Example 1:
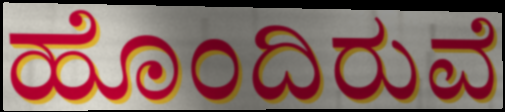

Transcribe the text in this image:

ಹೊಂದಿರುವೆ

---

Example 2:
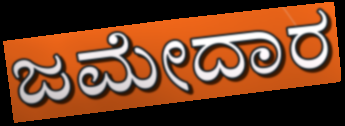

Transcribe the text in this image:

ಜಮೇದಾರ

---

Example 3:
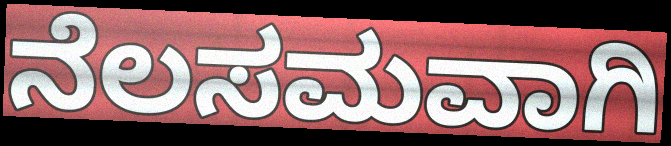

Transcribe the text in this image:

ನೆಲಸಮವಾಗಿ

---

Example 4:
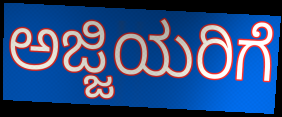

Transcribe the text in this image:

ಅಜ್ಜಿಯರಿಗೆ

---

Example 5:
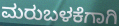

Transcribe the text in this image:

ಮರುಬಳಕೆಗಾಗಿ